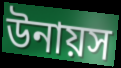
উনায়স